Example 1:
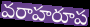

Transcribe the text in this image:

వరాహరూప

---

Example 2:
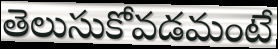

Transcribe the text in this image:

తెలుసుకోవడమంటే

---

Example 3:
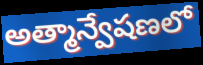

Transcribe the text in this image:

అత్మాన్వేషణలో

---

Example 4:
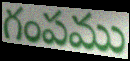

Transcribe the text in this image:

గంపము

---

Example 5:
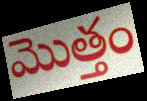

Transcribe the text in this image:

మొత్తం